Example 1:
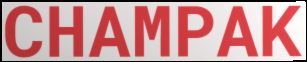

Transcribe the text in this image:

CHAMPAK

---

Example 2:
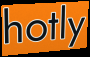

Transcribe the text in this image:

hotly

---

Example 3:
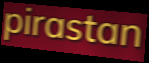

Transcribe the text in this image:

pirastan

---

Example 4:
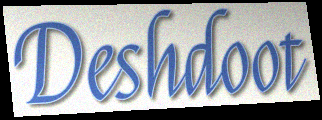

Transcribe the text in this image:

Deshdoot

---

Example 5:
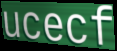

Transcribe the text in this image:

ucecf